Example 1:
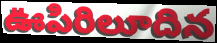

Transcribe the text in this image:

ఊపిరిలూదిన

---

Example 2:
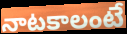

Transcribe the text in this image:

నాటకాలంటే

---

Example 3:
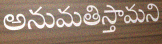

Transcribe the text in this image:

అనుమతిస్తామని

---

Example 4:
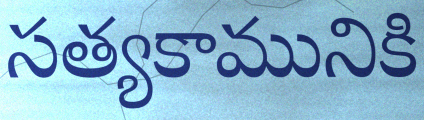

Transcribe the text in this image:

సత్యకామునికి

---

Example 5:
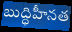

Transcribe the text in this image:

బుద్ధిహీనత